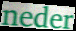
neder